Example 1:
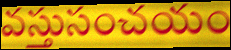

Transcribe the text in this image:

వస్తుసంచయం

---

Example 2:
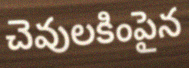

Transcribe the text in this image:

చెవులకింపైన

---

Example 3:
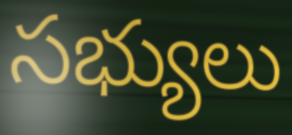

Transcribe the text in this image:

సభ్యులు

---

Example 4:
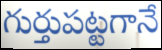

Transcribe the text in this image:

గుర్తుపట్టగానే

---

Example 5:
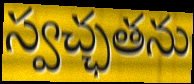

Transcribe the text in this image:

స్వచ్ఛతను